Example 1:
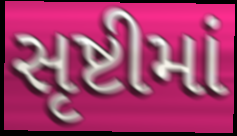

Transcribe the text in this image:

સૃષ્ટીમાં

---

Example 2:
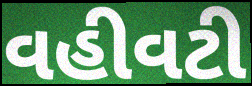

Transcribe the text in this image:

વહીવટી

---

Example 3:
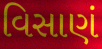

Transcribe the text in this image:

વિસાણં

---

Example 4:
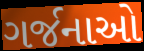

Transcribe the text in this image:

ગર્જનાઓ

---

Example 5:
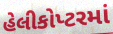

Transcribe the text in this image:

હેલીકોપ્ટરમાં